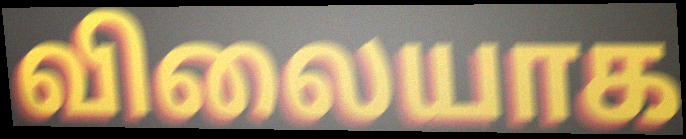
விலையாக